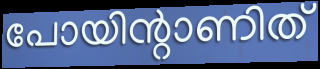
പോയിന്റാണിത്